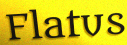
Flatus